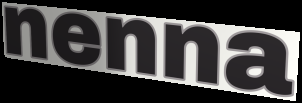
nenna